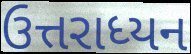
ઉત્તરાધ્યન